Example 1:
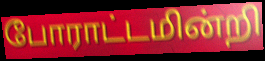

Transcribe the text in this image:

போராட்டமின்றி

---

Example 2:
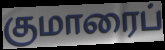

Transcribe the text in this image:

குமாரைப்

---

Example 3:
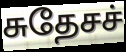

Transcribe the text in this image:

சுதேசச்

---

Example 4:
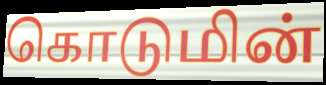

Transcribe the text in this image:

கொடுமின்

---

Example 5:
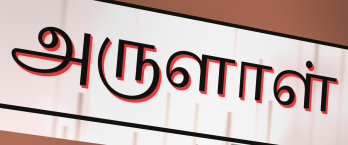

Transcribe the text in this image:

அருளாள்